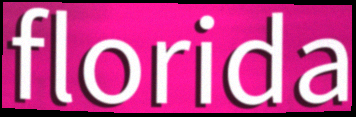
florida